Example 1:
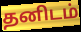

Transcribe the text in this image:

தனிடம்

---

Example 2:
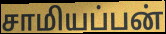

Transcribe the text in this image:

சாமியப்பன்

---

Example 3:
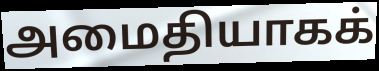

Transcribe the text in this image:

அமைதியாகக்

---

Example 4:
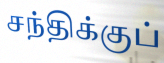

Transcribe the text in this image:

சந்திக்குப்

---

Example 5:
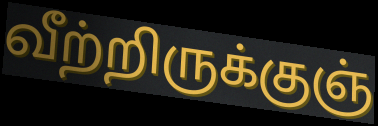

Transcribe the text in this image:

வீற்றிருக்குஞ்